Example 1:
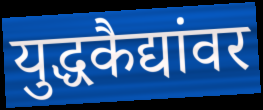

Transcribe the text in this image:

युद्धकैद्यांवर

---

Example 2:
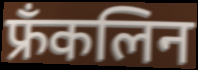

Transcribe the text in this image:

फ्रॅंकलिन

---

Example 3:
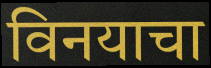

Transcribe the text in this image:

विनयाचा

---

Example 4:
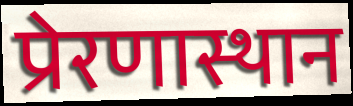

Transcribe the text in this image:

प्रेरणास्थान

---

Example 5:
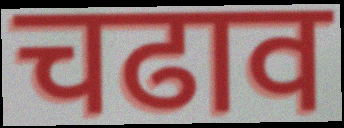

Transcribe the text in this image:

चढाव